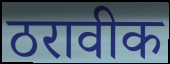
ठरावीक